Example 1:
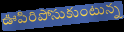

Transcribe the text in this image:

ఊపిరిపోసుకుంటున్న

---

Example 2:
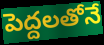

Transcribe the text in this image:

పెద్దలతోనే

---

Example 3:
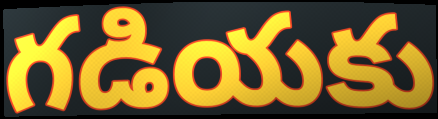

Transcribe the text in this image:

గడియకు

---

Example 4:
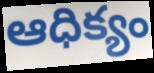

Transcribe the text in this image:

ఆధిక్యం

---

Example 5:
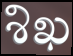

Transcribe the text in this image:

శిఖ